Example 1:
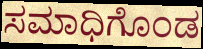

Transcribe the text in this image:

ಸಮಾಧಿಗೊಂಡ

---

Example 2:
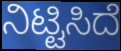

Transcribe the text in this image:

ನಿಟ್ಟಿಸಿದೆ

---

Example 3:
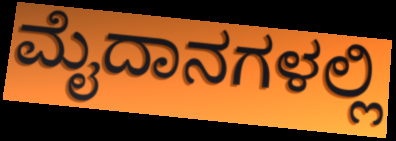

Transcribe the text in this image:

ಮೈದಾನಗಳಲ್ಲಿ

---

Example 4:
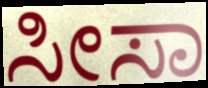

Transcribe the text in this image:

ಸೀಸಾ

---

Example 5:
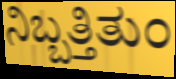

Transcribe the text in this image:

ನಿಬ್ಬತ್ತಿತುಂ